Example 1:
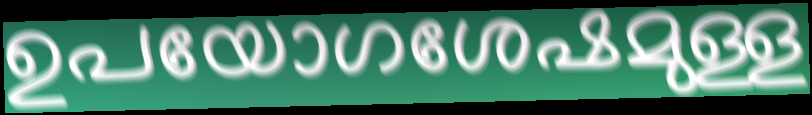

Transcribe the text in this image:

ഉപയോഗശേഷമുള്ള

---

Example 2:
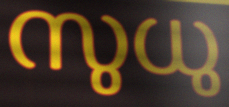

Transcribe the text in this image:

സുധു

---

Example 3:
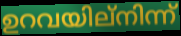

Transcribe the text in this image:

ഉറവയില്നിന്ന്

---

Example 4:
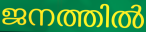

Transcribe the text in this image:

ജനത്തിൽ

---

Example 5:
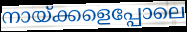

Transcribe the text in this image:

നായ്ക്കളെപ്പോലെ